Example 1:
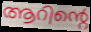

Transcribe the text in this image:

ആറിന്റെ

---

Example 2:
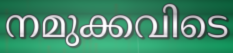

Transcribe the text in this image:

നമുക്കവിടെ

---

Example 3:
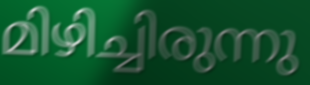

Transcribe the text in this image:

മിഴിച്ചിരുന്നു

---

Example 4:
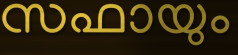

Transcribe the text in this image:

സഫായും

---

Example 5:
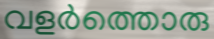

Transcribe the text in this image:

വളർത്തൊരു